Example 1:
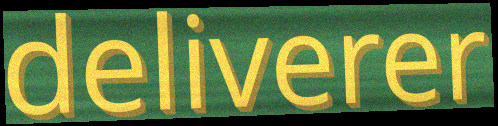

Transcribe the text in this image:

deliverer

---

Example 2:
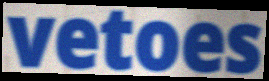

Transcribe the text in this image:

vetoes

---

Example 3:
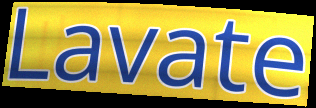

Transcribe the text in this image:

Lavate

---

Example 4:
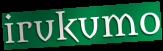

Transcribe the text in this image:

irukumo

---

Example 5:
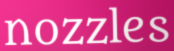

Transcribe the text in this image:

nozzles